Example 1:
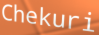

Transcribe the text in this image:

Chekuri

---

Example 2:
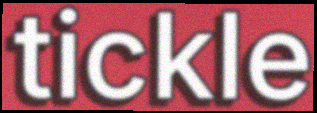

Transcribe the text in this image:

tickle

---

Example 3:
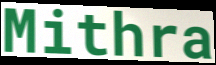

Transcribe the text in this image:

Mithra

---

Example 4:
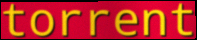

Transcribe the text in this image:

torrent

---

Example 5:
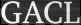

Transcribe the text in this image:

GACL